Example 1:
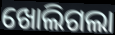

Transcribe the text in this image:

ଖୋଲିଗଲା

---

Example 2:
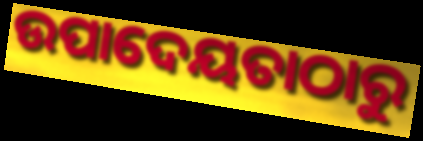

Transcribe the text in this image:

ଉପାଦେୟତାଠାରୁ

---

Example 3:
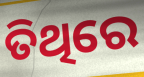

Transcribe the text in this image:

ତିଥିରେ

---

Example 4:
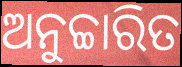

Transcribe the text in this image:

ଅନୁଚ୍ଚାରିତ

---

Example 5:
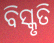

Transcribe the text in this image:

ବିସ୍କୃତି